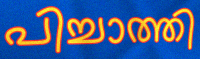
പിച്ചാത്തി